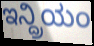
ಇನ್ದ್ರಿಯಂ